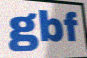
gbf